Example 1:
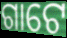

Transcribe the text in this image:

ଗାଟେ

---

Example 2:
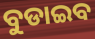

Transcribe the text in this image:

ବୁଡାଇବ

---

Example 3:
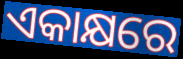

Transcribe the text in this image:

ଏକାକ୍ଷରେ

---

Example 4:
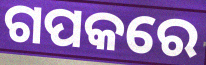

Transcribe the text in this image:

ଗପକରେ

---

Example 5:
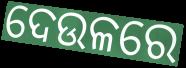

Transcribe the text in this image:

ଦେଉଳରେ